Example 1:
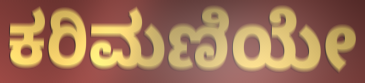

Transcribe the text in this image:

ಕರಿಮಣಿಯೇ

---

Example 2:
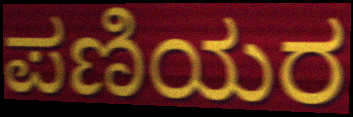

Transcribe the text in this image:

ಪಣಿಯರ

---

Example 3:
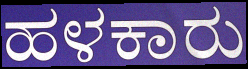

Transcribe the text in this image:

ಹಳಕಾರು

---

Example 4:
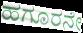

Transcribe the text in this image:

ಹಗೂರನೇ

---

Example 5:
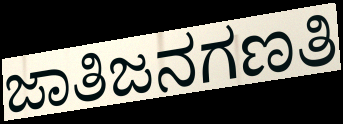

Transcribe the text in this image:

ಜಾತಿಜನಗಣತಿ